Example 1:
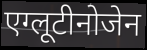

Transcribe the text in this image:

एग्लूटीनोजेन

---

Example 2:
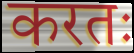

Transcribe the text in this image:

करतः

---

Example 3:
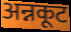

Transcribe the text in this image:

अन्नकूट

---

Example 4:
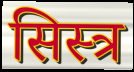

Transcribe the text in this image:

सिस्त्र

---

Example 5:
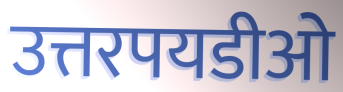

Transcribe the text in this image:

उत्तरपयडीओ